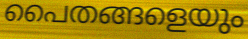
പൈതങ്ങളെയും